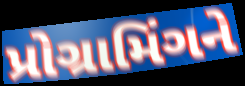
પ્રોગ્રામિંગને